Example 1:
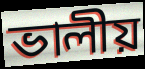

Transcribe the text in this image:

ভালীয়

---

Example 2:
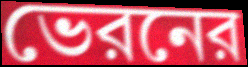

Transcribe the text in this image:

ভেরনের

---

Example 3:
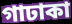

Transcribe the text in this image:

গাঢাকা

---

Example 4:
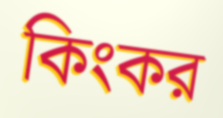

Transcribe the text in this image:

কিংকর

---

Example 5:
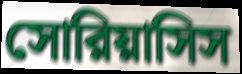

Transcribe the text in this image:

সোরিয়াসিস